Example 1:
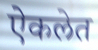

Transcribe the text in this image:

ऐकलेत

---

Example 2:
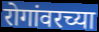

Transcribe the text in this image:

रोगांवरच्या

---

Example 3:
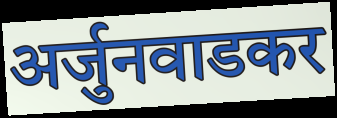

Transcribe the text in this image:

अर्जुनवाडकर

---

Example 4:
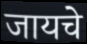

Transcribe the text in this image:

जायचे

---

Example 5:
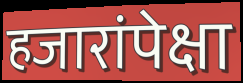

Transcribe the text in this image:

हजारांपेक्षा